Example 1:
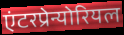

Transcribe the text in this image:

एंटरप्रेन्योरियल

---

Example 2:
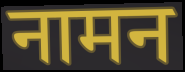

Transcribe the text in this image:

नामन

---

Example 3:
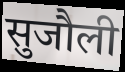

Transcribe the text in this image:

सुजौली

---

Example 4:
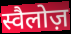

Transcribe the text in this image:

स्वैलोज़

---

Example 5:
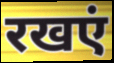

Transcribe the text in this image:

रखएं